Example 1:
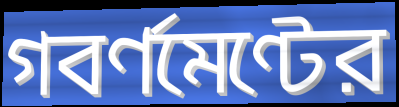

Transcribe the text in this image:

গবর্ণমেণ্টের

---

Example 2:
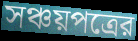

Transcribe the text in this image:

সঞ্চয়পত্রের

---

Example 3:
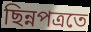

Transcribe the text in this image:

ছিন্নপত্রতে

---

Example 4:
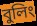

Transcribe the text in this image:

বুলিং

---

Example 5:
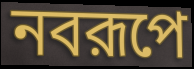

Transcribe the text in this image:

নবরূপে